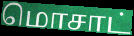
மொசாட்